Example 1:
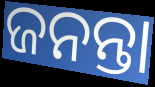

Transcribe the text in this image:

ଜନନ୍ତା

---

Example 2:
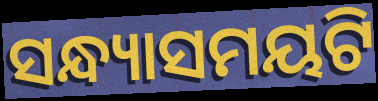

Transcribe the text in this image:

ସନ୍ଧ୍ୟାସମୟଟି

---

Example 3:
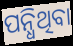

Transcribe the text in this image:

ପନ୍ଧିଥିବା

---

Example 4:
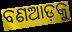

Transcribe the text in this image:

ବଣଆଡ଼କୁ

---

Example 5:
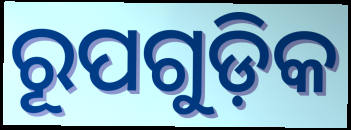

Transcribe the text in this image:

ରୂପଗୁଡ଼ିକ